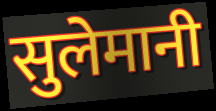
सुलेमानी